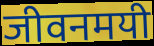
जीवनमयी